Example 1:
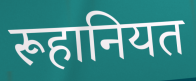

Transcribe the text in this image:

रूहानियत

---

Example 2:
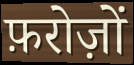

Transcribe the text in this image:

फ़रोज़ों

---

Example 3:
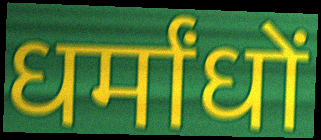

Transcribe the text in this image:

धर्मांधों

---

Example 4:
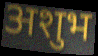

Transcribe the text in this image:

अशुभ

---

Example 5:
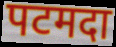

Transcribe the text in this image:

पटमदा